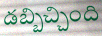
డబ్బిచ్చింది